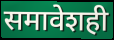
समावेशही